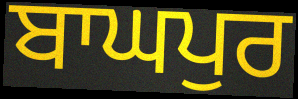
ਬਾਘਪੁਰ